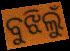
ବୁଝିଲୁଁ